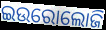
ଇଉରୋଲୋଜି